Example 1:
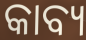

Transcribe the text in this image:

କାବ୍ୟ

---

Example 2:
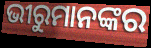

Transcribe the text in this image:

ଭୀରୁମାନଙ୍କର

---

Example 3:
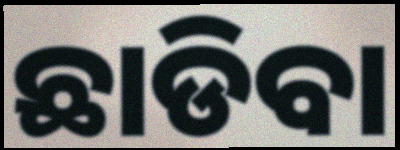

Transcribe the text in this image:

ଛାଡିବା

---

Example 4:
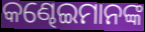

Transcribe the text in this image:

କଣ୍ଢେଇମାନଙ୍କ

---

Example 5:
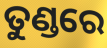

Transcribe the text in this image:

ତୁଣ୍ଡରେ